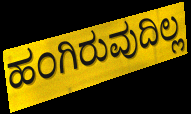
ಹಂಗಿರುವುದಿಲ್ಲ